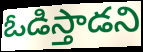
ఓడిస్తాడని